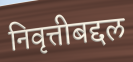
निवृत्तीबद्दल